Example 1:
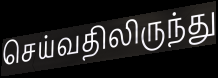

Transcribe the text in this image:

செய்வதிலிருந்து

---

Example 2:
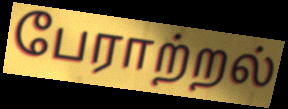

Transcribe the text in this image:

பேராற்றல்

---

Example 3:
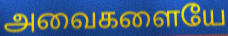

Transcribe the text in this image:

அவைகளையே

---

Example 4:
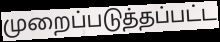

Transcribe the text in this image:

முறைப்படுத்தப்பட்ட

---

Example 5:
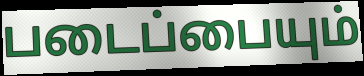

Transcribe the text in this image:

படைப்பையும்